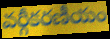
వర్గీకరణీయం